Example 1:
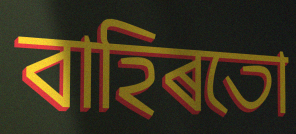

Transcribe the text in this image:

বাহিৰতো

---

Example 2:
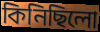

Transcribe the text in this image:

কিনিছিলো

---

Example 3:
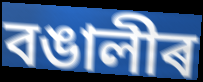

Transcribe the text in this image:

বঙালীৰ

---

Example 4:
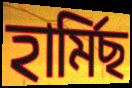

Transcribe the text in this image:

হাৰ্মিছ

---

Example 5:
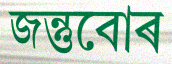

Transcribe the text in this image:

জন্তুবোৰ